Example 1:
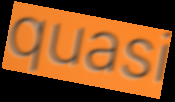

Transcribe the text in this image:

quasi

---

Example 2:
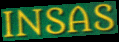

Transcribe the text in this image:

INSAS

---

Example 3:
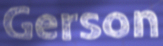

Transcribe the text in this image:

Gerson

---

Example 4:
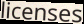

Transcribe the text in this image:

licenses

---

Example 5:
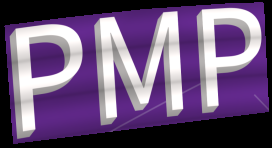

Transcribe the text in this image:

PMP